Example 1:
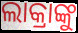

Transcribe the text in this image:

ଲାକ୍ରାଙ୍କୁ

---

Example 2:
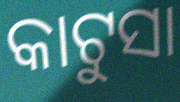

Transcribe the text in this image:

କାଟୁସା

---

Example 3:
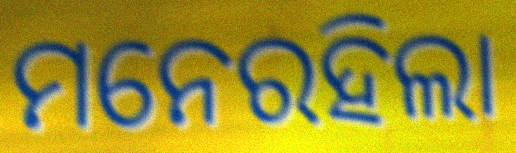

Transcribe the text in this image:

ମନେରହିଲା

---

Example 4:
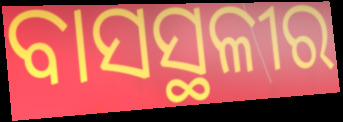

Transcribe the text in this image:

ବାସସ୍ଥଳୀର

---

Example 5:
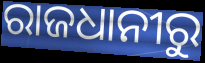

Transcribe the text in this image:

ରାଜଧାନୀରୁ